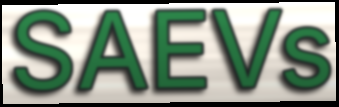
SAEVs